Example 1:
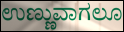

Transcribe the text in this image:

ಉಣ್ಣುವಾಗಲೂ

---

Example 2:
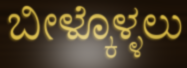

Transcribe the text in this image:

ಬೀಳ್ಕೊಳ್ಳಲು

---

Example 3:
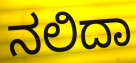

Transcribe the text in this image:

ನಲಿದಾ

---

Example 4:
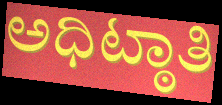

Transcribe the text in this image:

ಅಧಿಟ್ಠಾತಿ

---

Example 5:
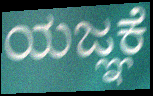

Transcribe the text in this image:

ಯಜ್ಞಕೆ